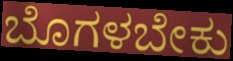
ಬೊಗಳಬೇಕು